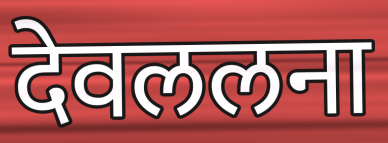
देवललना